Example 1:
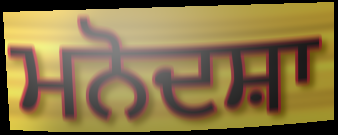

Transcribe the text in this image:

ਮਨੋਦਸ਼ਾ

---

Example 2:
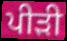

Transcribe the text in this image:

ਪੀੜੀ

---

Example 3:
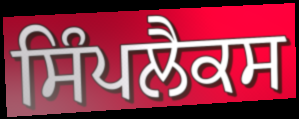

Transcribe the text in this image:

ਸਿੰਪਲੈਕਸ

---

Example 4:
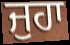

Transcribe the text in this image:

ਜੁਹਾ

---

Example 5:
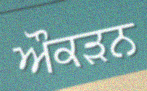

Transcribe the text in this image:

ਔਕੜਨ